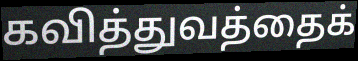
கவித்துவத்தைக்